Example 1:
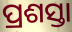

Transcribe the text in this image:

ପ୍ରଶସ୍ତା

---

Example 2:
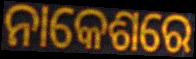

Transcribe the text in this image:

ନାକେଶରେ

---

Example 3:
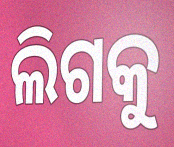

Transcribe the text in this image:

ଲିଗକୁ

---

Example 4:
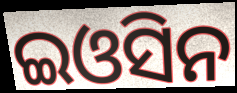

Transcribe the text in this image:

ଇଓସିନ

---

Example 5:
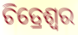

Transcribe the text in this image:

ଚିତ୍ରେଶ୍ୱର